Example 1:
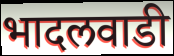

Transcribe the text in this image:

भादलवाडी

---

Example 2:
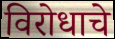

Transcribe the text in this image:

विरोधाचे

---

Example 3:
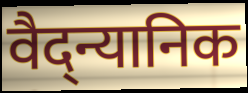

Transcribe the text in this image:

वैद्न्यानिक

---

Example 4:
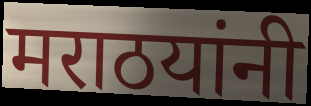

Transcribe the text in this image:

मराठयांनी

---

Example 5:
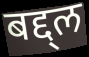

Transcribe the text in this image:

बद्द्ल